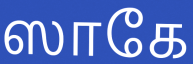
ஸாகே